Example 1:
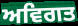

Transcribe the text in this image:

ਅਵਿਗਤ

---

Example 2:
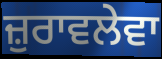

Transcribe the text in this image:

ਜ਼ੁਰਾਵਲੇਵਾ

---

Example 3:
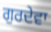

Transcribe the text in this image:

ਗੁਰਦੇਵਾ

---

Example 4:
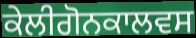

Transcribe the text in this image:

ਕੇਲੀਗੋਨਕਾਲਵਸ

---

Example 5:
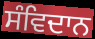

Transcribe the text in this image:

ਸੰਵਿਦਾਨ